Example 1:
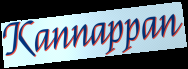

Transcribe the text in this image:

Kannappan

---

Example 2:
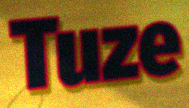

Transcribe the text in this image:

Tuze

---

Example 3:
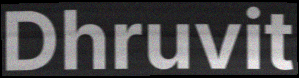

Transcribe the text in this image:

Dhruvit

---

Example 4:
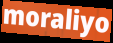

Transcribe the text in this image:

moraliyo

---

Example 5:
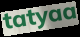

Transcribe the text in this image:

tatyaa